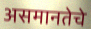
असमानतेचे